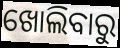
ଖୋଲିବାରୁ